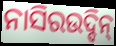
ନାସିରଉଦ୍ଦିନ୍